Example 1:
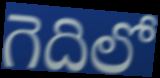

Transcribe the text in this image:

గెదిలో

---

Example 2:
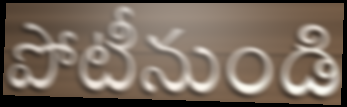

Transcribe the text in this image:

పోటీనుండి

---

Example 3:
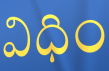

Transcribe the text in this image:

విధిం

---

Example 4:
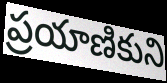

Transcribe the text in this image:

ప్రయాణికుని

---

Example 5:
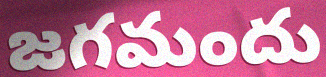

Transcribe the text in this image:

జగమందు